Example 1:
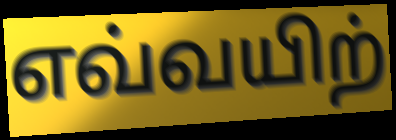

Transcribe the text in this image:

எவ்வயிற்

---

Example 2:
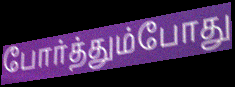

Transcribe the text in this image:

போர்த்தும்போது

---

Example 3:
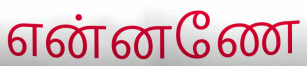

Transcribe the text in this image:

என்னணே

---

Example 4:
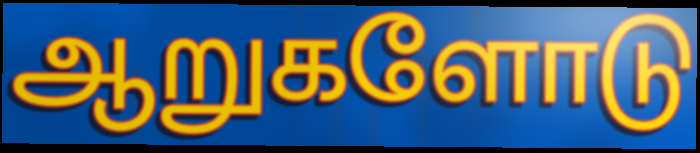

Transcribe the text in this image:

ஆறுகளோடு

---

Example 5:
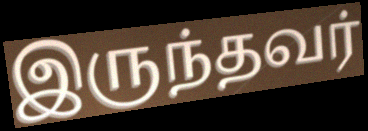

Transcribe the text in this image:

இருந்தவர்